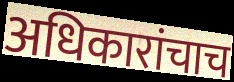
अधिकारांचाच